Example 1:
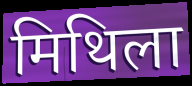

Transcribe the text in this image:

मिथिला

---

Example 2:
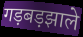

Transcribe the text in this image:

गड़बड़झाले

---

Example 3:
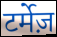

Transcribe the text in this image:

टर्मेज़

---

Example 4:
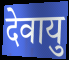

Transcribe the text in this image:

देवायु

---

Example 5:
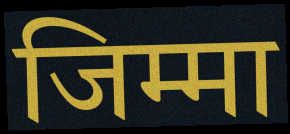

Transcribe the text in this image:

जिम्‍मा